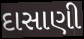
દાસાણી